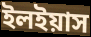
ইলইয়াস